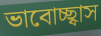
ভাবোচ্ছ্বাস